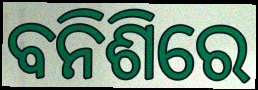
ବନିଶିରେ